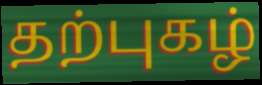
தற்புகழ்